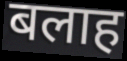
बलाह